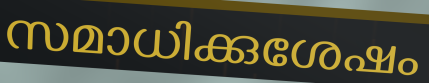
സമാധിക്കുശേഷം